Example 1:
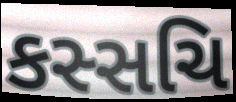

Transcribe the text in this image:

કસ્સચિ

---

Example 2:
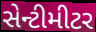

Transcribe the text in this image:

સેન્ટીમીટર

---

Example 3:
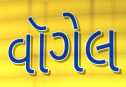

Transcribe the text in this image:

વૉગેલ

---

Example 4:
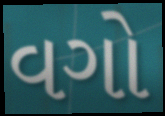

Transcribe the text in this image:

વગો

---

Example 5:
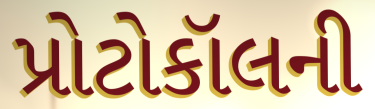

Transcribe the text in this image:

પ્રોટોકૉલની